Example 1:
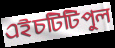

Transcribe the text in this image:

এইচটিটিপুল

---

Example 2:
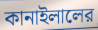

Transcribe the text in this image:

কানাইলালের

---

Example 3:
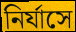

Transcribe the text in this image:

নির্যাসে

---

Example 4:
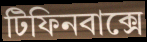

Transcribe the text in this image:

টিফিনবাক্সে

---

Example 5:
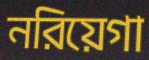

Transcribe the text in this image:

নরিয়েগা